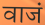
वाजं